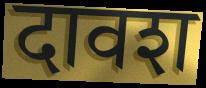
दावश